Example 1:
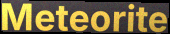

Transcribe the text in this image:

Meteorite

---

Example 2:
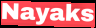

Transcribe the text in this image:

Nayaks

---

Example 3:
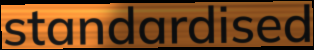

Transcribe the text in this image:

standardised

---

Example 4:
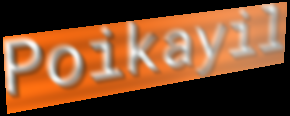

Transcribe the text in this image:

Poikayil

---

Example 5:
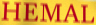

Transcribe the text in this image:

HEMAL